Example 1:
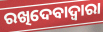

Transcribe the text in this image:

ରଖିଦେବାଦ୍ୱାରା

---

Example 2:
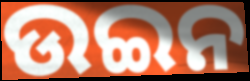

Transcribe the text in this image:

ଉଇନ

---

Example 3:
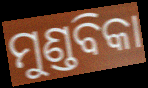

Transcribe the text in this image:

ମୁଣ୍ଡବିକା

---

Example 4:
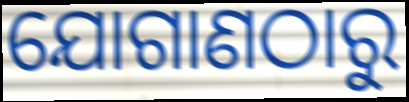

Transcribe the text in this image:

ଯୋଗାଣଠାରୁ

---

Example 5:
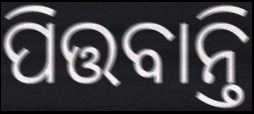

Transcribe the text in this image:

ପିତ୍ତବାନ୍ତି